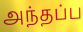
அந்தப்ப